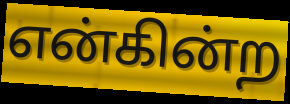
என்கின்ற